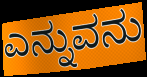
ಎನ್ನುವನು